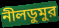
নীলডুমুর